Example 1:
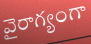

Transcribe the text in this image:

వైరాగ్యంగా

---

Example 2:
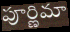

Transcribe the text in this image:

పూర్ణిమా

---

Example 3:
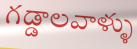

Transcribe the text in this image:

గడ్డాలవాళ్ళు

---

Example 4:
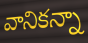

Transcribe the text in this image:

వానికన్నా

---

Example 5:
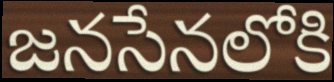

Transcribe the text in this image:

జనసేనలోకి